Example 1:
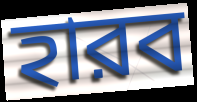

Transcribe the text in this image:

হারব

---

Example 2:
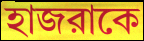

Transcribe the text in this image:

হাজরাকে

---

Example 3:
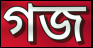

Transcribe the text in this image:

গজ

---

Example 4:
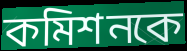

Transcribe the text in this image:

কমিশনকে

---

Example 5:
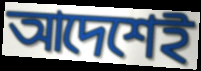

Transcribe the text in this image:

আদেশেই